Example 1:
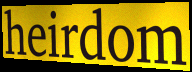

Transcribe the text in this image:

heirdom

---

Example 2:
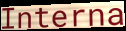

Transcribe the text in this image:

Interna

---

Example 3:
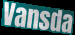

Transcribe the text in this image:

Vansda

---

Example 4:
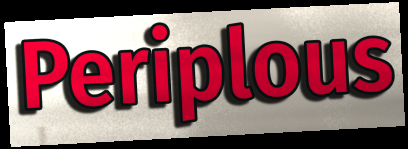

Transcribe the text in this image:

Periplous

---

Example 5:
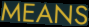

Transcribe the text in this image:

MEANS